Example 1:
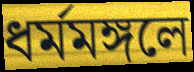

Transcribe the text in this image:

ধর্মমঙ্গলে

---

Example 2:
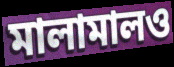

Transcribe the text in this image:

মালামালও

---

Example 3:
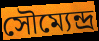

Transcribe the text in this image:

সৌম্যেন্দ্র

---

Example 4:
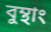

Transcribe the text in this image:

বুম্থাং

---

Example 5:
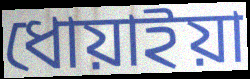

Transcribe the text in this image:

ধোয়াইয়া